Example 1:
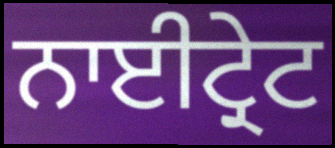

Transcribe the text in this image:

ਨਾਈਟ੍ਰੇਟ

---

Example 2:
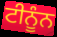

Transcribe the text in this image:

ਟੀਨੂੰਨ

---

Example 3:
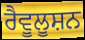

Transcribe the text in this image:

ਰੈਵੂਲੂਸ਼ਨ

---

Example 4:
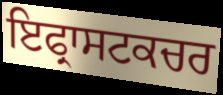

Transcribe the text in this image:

ਇਫ੍ਰਾਸਟਕਚਰ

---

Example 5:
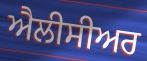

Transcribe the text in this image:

ਐਲੀਸੀਅਰ